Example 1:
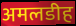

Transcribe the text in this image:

अमलडीह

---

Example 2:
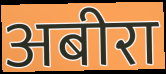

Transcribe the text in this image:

अबीरा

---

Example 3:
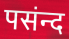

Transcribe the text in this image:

पसंन्द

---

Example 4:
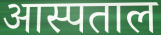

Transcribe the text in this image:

आस्पताल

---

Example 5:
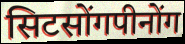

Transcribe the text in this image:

सिटसोंगपीनोंग